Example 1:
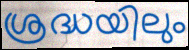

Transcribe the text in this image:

ശ്രദ്ധയിലും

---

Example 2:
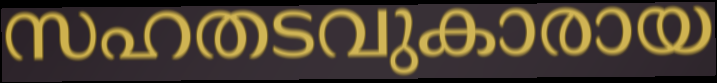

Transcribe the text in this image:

സഹതടവുകാരായ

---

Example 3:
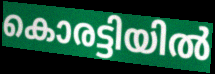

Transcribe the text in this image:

കൊരട്ടിയിൽ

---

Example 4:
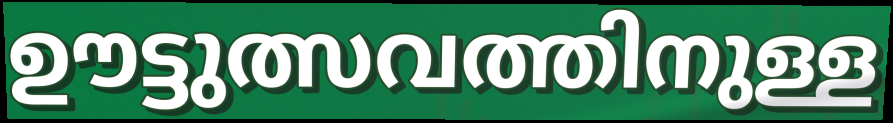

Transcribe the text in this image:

ഊട്ടുത്സവത്തിനുള്ള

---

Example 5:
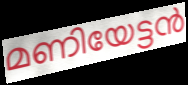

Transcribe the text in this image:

മണിയേട്ടൻ